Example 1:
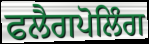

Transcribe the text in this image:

ਫਲੈਗਪੋਲਿੰਗ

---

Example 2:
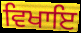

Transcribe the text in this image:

ਵਿਖਾਇ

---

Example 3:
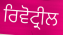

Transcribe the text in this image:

ਰਿਵੋਟ੍ਰੀਲ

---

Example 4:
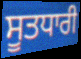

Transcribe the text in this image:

ਸੂਤਧਾਰੀ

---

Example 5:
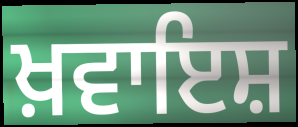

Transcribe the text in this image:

ਖ਼ਵਾਇਸ਼